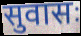
सुवासः